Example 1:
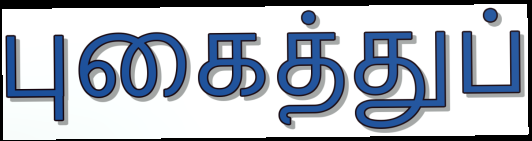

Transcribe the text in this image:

புகைத்துப்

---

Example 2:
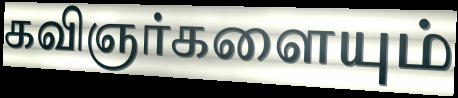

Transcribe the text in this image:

கவிஞர்களையும்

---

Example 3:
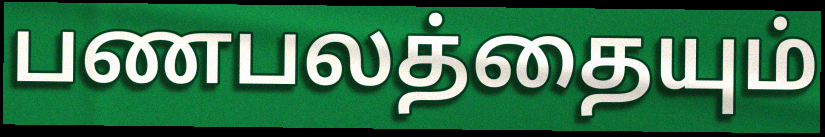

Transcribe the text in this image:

பணபலத்தையும்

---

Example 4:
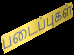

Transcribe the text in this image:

படைப்புகள்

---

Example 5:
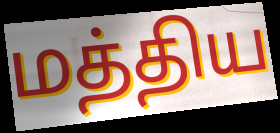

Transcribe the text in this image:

மத்திய